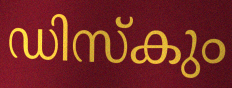
ഡിസ്കും